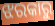
ଝରକାରୁ